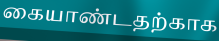
கையாண்டதற்காக